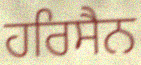
ਹਰਿਸੈਨ